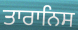
ਤਾਰਾਨਿਸ